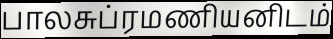
பாலசுப்ரமணியனிடம்